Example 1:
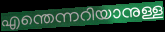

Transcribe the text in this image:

എന്തെന്നറിയാനുള്ള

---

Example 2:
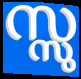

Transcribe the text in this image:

സ്സു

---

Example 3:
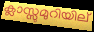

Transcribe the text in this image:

ക്ലാസ്സുമുറിയില്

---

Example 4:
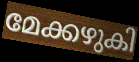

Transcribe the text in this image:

മേക്കഴുകി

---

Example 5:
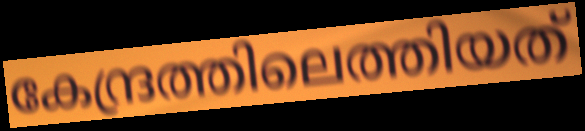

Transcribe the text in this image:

കേന്ദ്രത്തിലെത്തിയത്